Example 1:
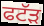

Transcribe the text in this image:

ਫਟੱੜ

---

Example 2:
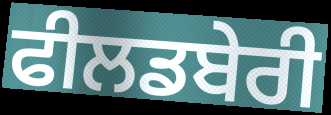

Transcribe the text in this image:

ਫੀਲਡਬੇਰੀ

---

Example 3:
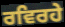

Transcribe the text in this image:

ਰਵਿਰਹੇ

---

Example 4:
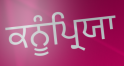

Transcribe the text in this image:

ਕਨੂੰਪ੍ਰਿਯਾ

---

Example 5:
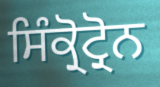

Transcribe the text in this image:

ਸਿੰਕ੍ਰੋਟ੍ਰੋਨ